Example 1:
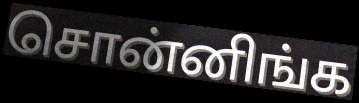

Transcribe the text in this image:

சொன்னிங்க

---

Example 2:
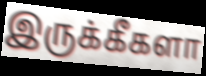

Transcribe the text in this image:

இருக்கீகளா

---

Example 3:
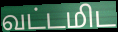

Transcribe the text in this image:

வட்டமிட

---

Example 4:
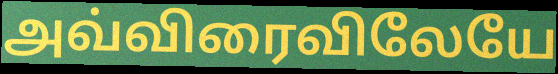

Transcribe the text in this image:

அவ்விரைவிலேயே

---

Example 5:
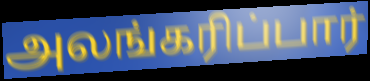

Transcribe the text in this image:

அலங்கரிப்பார்